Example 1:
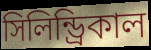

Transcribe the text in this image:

সিলিন্ড্রিকাল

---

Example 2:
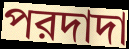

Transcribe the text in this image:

পরদাদা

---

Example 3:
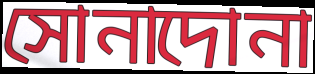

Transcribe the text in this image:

সোনাদোনা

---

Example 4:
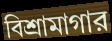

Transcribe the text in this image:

বিশ্রামাগার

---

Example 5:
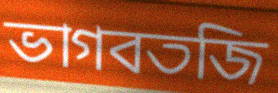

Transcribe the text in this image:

ভাগবতজি